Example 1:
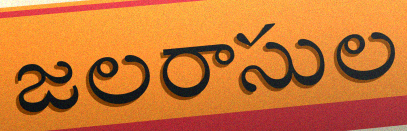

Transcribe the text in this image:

జలరాసుల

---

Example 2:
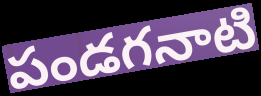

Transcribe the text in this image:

పండగనాటి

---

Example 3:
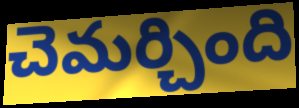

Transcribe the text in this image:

చెమర్చింది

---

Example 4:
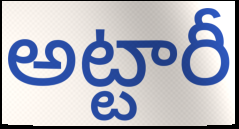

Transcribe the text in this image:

అట్టారీ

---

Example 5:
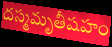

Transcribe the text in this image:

దస్మమృతీషహం